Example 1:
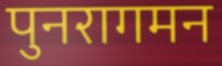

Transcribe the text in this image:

पुनरागमन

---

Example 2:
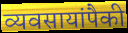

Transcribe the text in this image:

व्यवसायांपैकी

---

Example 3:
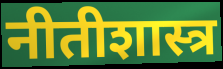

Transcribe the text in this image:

नीतीशास्त्र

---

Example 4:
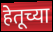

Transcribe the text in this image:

हेतूच्या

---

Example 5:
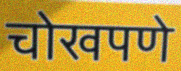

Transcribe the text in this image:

चोखपणे